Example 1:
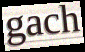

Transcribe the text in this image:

gach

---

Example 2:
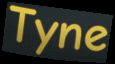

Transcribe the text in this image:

Tyne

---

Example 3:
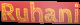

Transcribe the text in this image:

Ruhani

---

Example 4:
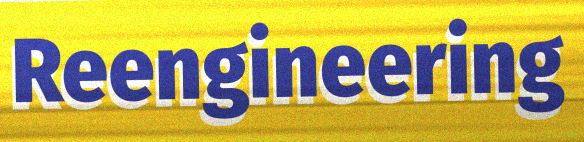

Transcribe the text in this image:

Reengineering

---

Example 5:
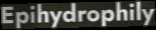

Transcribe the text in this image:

Epihydrophily